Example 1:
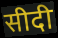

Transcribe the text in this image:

सीदी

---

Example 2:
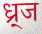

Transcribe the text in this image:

ध्र्ज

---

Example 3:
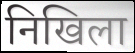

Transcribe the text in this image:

निखिला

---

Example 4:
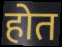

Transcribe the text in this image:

होत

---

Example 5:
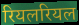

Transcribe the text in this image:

रियलरियल